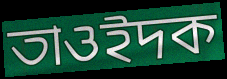
তাওইদক